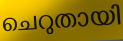
ചെറുതായി